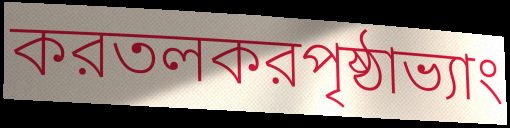
করতলকরপৃষ্ঠাভ্যাং